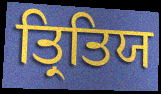
ਤ੍ਰਿਤਿਯ